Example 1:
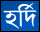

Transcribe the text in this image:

হৰ্দি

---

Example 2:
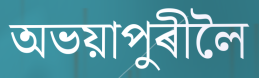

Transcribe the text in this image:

অভয়াপুৰীলৈ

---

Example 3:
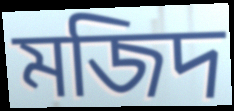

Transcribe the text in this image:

মজিদ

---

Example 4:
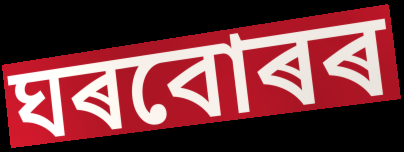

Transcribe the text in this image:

ঘৰবোৰৰ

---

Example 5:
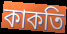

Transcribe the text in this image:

কাকতি